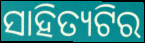
ସାହିତ୍ୟଟିର